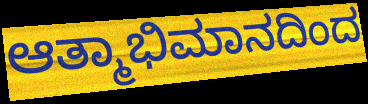
ಆತ್ಮಾಭಿಮಾನದಿಂದ